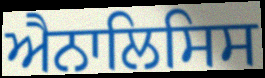
ਐਨਾਲਿਸਿਸ